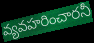
వ్యవహరించారనీ